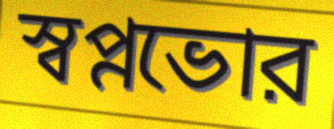
স্বপ্নভোর